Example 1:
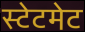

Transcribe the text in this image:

स्टेटमेट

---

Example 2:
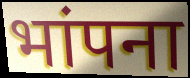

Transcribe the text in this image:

भांपना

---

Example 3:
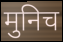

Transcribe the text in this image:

मुनिच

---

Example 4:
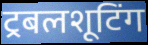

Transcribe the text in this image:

ट्रबलशूटिंग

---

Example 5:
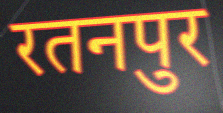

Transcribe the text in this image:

रतनपुर